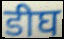
डीघ